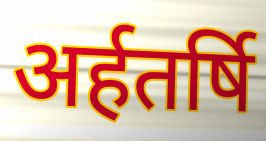
अर्हतर्षि